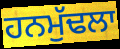
ਹਨਮੁੱਢਲਾ